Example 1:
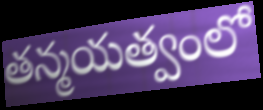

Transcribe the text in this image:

తన్మయత్వంలో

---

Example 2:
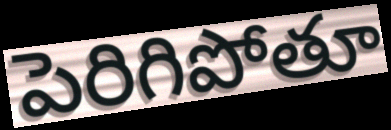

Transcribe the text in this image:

పెరిగిపోతూ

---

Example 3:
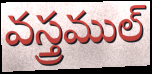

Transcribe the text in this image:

వస్త్రముల్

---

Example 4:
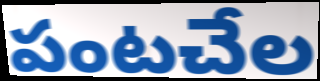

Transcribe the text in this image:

పంటచేల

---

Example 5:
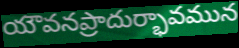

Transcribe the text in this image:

యౌవనప్రాదుర్భావమున